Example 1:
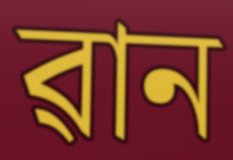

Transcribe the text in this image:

ৱান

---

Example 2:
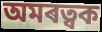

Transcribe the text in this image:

অমৰত্বক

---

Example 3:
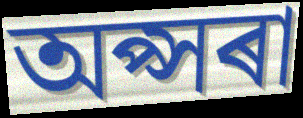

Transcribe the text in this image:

অপ্সৰা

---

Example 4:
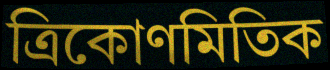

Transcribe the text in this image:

ত্ৰিকোণমিতিক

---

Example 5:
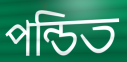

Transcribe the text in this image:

পন্ডিত